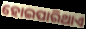
ହୋଇପାରିଥାଏ